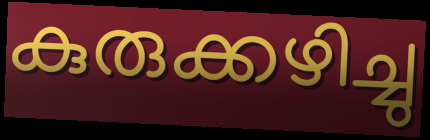
കുരുക്കഴിച്ചു